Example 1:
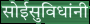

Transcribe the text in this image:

सोईसुविधांनी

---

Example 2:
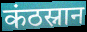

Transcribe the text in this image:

कंठस्नान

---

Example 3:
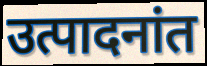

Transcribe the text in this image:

उत्पादनांत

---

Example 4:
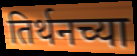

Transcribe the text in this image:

तिर्थनच्या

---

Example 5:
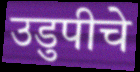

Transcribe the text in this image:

उडुपीचे